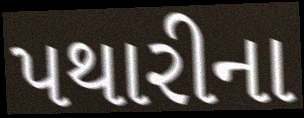
પથારીના